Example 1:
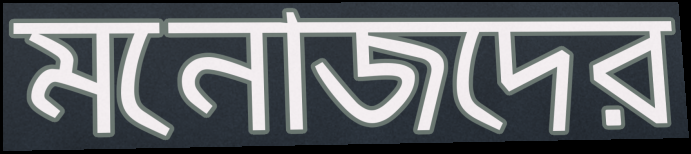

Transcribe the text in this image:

মনোজদের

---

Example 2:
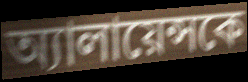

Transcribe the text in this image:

অ্যালায়েন্সকে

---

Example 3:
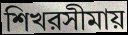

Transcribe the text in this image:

শিখরসীমায়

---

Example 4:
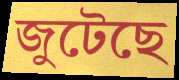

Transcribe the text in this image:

জুটেছে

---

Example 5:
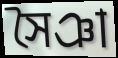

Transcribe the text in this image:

সৈঞা